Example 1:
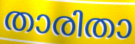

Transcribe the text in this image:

താരിതാ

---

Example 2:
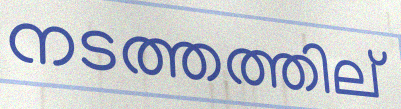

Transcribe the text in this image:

നടത്തത്തില്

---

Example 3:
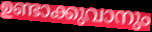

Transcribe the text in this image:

ഉണ്ടാക്കുവാനും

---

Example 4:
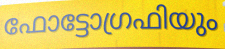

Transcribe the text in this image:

ഫോട്ടോഗ്രഫിയും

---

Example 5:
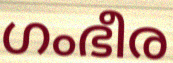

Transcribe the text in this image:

ഗംഭീര